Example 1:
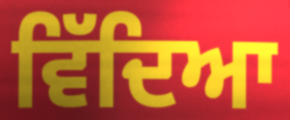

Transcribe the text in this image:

ਵਿੱਦਿਆ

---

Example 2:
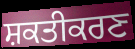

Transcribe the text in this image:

ਸ਼ਕਤੀਕਰਣ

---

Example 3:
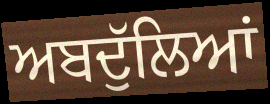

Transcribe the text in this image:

ਅਬਦੁੱਲਿਆਂ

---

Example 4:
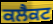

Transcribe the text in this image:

ਕਲੈਕਟ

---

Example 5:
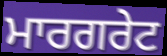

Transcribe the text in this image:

ਮਾਰਗਰੇਟ